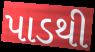
પાડથી